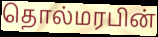
தொல்மரபின்